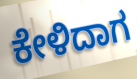
ಕೇಳಿದಾಗ